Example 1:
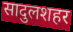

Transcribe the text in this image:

सादुलशहर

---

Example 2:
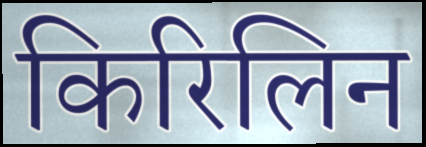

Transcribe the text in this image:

किरिलिन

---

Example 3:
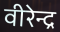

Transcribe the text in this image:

वीरेन्‍द्र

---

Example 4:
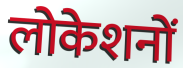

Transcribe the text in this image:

लोकेशनों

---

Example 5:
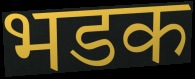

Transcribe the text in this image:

भडक